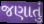
જણાતું